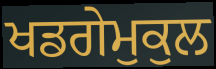
ਖਡਗੇਮੁਕੁਲ